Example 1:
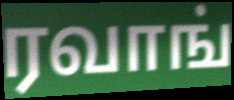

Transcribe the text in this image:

ரவாங்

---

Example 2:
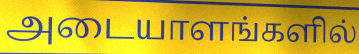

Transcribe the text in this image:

அடையாளங்களில்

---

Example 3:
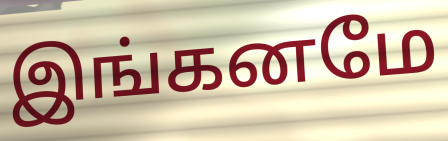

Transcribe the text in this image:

இங்கனமே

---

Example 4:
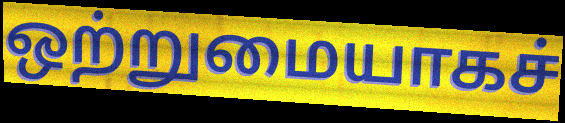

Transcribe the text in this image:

ஒற்றுமையாகச்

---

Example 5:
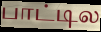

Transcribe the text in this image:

பாட்டில